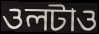
ওলটাও